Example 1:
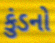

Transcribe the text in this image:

કુંડનો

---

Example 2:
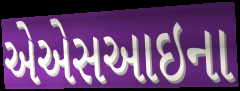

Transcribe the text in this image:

એએસઆઇના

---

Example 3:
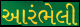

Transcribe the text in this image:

આરંભેલી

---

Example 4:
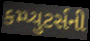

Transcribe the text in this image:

કમ્પ્યુટર્સની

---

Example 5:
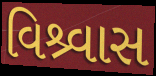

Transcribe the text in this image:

વિશ્ર્વાસ